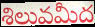
శిలువమీద